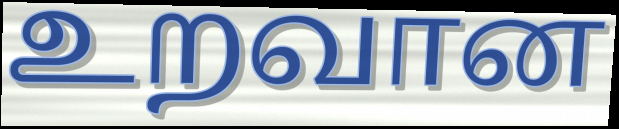
உறவான